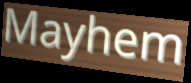
Mayhem